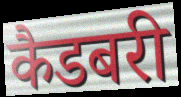
कैडबरी